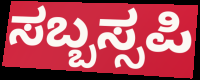
ಸಬ್ಬಸ್ಸಪಿ